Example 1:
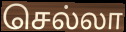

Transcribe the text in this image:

செல்லா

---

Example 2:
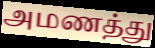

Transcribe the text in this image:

அமணத்து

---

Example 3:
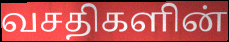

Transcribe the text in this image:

வசதிகளின்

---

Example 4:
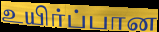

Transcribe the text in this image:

உயிர்ப்பான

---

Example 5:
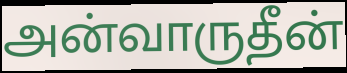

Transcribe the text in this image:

அன்வாருதீன்